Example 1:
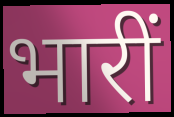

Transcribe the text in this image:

भारीं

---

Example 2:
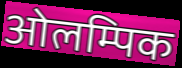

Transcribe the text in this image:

ओलम्पिक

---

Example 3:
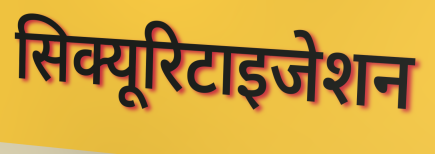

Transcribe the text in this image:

सिक्यूरिटाइजेशन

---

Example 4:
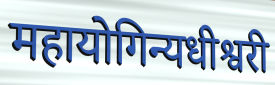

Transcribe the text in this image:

महायोगिन्यधीश्वरी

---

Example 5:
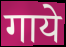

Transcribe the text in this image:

गाये